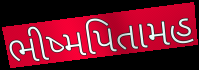
ભીષ્મપિતામહ